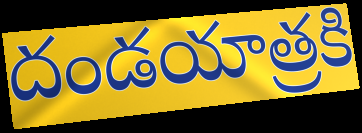
దండయాత్రకి